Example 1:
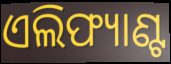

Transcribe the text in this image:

ଏଲିଫ୍ୟାଣ୍ଟ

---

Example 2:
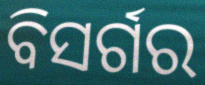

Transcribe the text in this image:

ବିସର୍ଗର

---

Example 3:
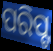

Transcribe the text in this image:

ପରିପ୍ଟ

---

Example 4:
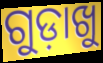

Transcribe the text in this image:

ଗୁଡ଼ାଖୁ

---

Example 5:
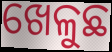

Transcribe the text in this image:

ଖେଳୁଛ